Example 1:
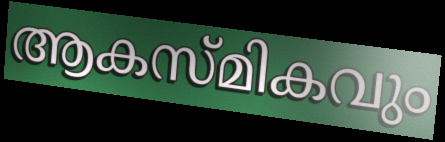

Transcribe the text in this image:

ആകസ്മികവും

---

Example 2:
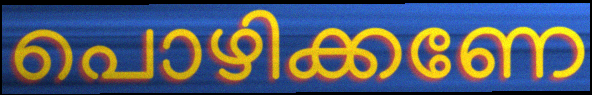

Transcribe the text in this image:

പൊഴിക്കണേ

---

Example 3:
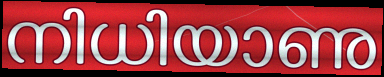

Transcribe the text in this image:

നിധിയാണു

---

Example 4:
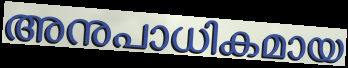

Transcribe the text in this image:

അനുപാധികമായ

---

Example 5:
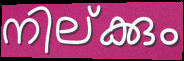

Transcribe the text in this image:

നില്ക്കും